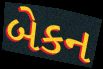
બેકન